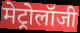
मेट्रोलॉजी